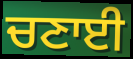
ਚਣਾਈ